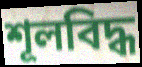
শূলবিদ্ধ